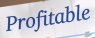
Profitable